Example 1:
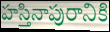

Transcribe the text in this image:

హస్తినాపురానికి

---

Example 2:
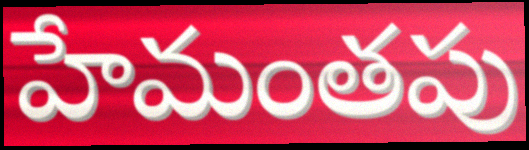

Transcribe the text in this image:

హేమంతపు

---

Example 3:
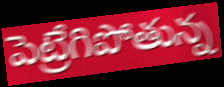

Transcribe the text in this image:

పెట్రేగిపోతున్న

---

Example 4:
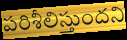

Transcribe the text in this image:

పరిశీలిస్తుందని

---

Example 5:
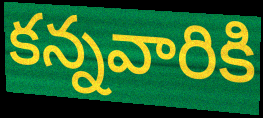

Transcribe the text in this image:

కన్నవారికి